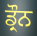
ਡ੍ਰੌਨ